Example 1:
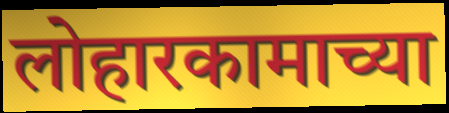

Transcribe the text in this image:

लोहारकामाच्या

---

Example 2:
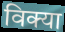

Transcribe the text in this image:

विक्या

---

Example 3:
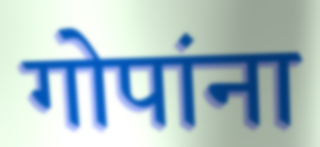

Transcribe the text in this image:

गोपांना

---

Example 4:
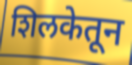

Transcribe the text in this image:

शिलकेतून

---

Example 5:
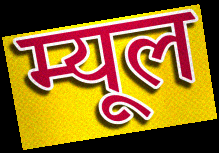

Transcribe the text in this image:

म्यूल